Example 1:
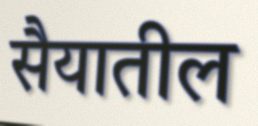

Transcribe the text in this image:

सैयातील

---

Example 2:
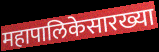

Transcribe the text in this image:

महापालिकेसारख्या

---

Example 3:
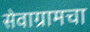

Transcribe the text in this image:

सेवाग्रामचा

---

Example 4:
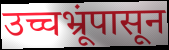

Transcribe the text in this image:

उच्चभ्रूंपासून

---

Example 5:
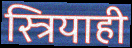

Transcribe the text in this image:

स्त्रियाही